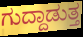
ಗುದ್ದಾಡುತ್ತ